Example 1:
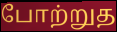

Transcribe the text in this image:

போற்றுத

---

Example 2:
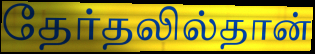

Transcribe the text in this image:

தேர்தலில்தான்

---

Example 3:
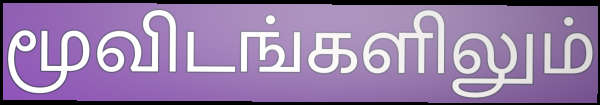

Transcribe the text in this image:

மூவிடங்களிலும்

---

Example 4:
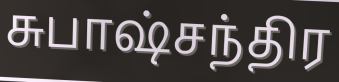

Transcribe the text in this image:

சுபாஷ்சந்திர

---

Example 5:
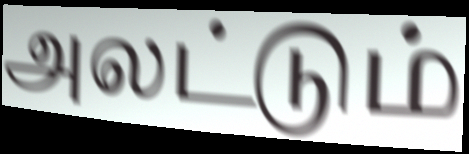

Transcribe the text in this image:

அலட்டும்